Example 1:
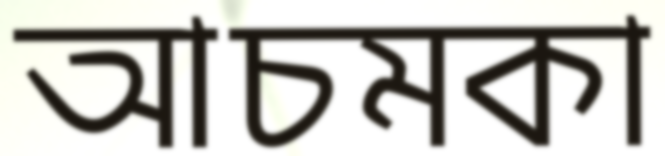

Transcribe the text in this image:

আচমকা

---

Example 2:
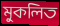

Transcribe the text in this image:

মুকলিত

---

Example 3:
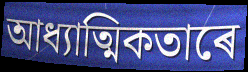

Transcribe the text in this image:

আধ্যাত্মিকতাৰে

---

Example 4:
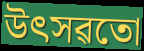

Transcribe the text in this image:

উৎসৱতো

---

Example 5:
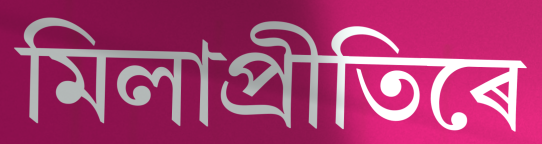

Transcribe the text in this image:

মিলাপ্ৰীতিৰে